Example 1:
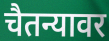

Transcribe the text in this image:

चैतन्यावर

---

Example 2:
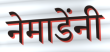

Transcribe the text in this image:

नेमाडेंनी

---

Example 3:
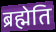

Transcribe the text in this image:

ब्रह्मेति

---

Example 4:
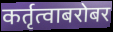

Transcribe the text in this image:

कर्तृत्वाबरोबर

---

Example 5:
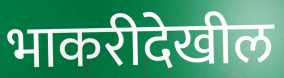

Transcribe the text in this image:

भाकरीदेखील